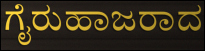
ಗೈರುಹಾಜರಾದ